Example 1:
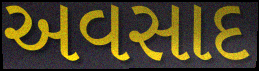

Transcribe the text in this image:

અવસાદ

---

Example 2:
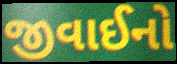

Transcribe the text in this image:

જીવાઈનો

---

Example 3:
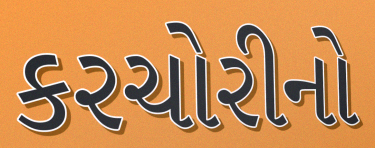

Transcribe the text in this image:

કરચોરીનો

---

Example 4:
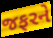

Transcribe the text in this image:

જફરને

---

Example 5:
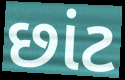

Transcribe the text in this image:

છાંટ